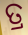
ତ୍ର